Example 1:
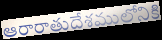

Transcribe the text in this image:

ఆరారాతుదేశములోనికి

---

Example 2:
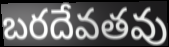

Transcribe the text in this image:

బరదేవతవు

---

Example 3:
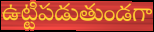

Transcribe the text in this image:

ఉట్టిపడుతుండగా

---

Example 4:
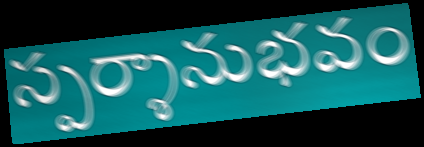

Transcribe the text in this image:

స్పర్శానుభవం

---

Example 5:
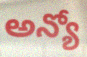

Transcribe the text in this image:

అన్యో